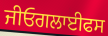
ਜੀਓਗਲਾਈਫਸ